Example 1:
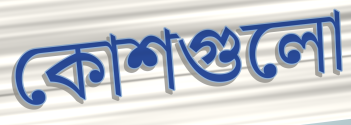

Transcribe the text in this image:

কোশগুলো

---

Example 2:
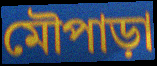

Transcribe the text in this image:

মৌপাড়া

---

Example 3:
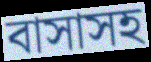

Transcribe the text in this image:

বাসাসহ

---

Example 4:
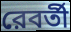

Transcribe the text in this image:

রেবর্তী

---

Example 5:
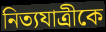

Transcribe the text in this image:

নিত্যযাত্রীকে